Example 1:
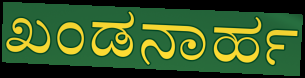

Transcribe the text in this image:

ಖಂಡನಾರ್ಹ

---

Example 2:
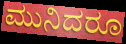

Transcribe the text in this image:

ಮುನಿದರೂ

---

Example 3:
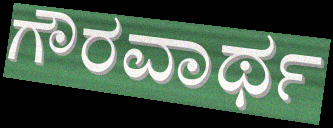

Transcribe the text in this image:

ಗೌರವಾರ್ಥ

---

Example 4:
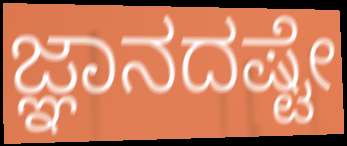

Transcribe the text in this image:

ಜ್ಞಾನದಷ್ಟೇ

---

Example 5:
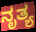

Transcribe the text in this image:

ನೃತ್ಯ